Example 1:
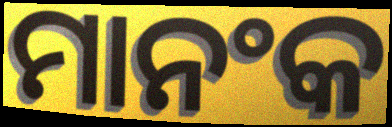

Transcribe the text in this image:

ମାନଂକ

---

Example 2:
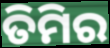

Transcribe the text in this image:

ତିମିର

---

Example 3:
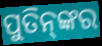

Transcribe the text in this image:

ପୁତିନ୍‌ଙ୍କର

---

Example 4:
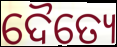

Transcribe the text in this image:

ଦୈତ୍ୟେ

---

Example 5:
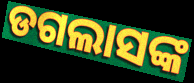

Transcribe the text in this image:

ଡଗଲାସଙ୍କ